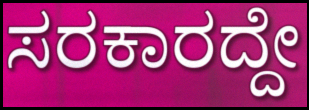
ಸರಕಾರದ್ದೇ